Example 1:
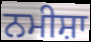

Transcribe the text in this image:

ਨਮੀਸ਼ਾ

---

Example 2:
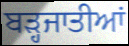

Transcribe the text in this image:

ਬੜ੍ਹਜਾਤੀਆਂ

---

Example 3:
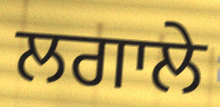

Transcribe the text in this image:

ਲਗਾਲੇ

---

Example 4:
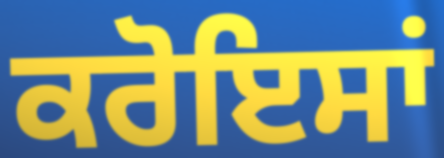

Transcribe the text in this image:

ਕਰੋਇਸਾਂ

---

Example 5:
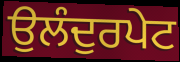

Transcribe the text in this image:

ਉਲੰਦੁਰਪੇਟ